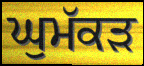
ਘੁਮੱਕਡ਼